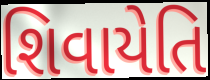
શિવાયેતિ